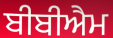
ਬੀਬੀਐਮ